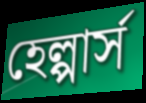
হেল্পার্স